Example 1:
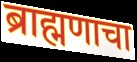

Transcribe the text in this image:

ब्राह्मणाचा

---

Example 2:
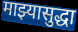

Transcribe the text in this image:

माझ्यासुद्धा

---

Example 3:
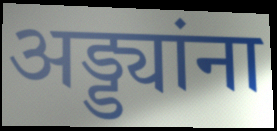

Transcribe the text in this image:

अड्ड्यांना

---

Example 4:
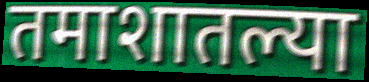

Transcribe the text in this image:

तमाशातल्या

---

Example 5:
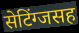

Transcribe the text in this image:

सेटिंग्जसह